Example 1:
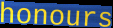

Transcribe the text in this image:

honours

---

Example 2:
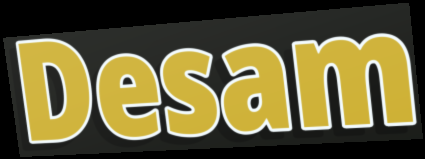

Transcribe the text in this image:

Desam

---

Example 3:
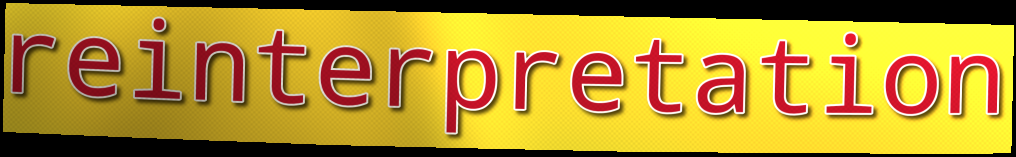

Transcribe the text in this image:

reinterpretation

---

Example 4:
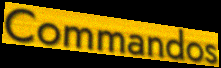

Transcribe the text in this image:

Commandos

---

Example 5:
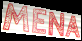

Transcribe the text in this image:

MENA